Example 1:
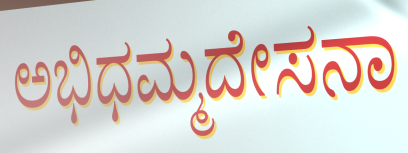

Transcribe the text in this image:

ಅಭಿಧಮ್ಮದೇಸನಾ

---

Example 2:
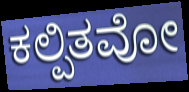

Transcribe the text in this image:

ಕಲ್ಪಿತವೋ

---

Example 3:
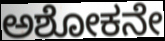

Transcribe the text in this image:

ಅಶೋಕನೇ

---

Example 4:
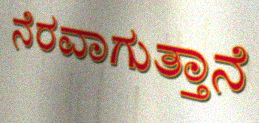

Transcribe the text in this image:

ನೆರವಾಗುತ್ತಾನೆ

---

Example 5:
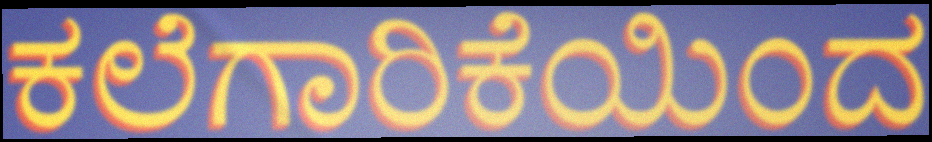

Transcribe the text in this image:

ಕಲೆಗಾರಿಕೆಯಿಂದ